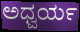
ಅಧ್ವರ್ಯ